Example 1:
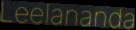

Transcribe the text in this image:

Leelananda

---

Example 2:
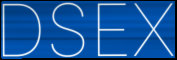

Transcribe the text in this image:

DSEX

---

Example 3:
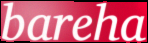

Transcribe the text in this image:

bareha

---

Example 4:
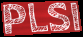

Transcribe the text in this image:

PLSI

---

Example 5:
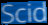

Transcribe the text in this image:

Scid